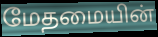
மேதமையின்